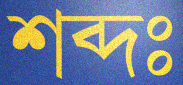
শব্দঃ